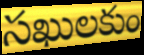
సఖులకుం